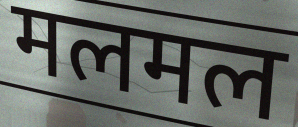
मलमल